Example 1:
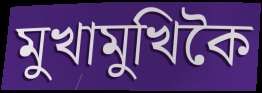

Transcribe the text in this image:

মুখামুখিকৈ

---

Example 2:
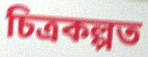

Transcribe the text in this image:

চিত্ৰকল্পত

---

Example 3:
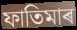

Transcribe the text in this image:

ফাতিমাৰ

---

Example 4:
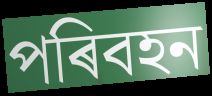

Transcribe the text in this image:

পৰিবহন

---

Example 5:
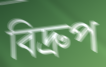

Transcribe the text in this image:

বিদ্ৰুপ